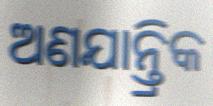
ଅଣଯାନ୍ତ୍ରିକ